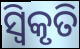
ସ୍ଵିକୃତି